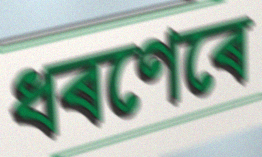
ধৰণেৰে